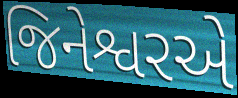
જિનેશ્વરએ